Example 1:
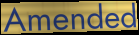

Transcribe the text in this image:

Amended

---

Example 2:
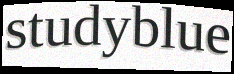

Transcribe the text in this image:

studyblue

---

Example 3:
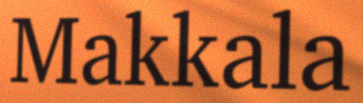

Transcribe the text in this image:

Makkala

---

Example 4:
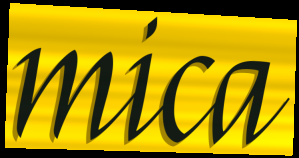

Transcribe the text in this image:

mica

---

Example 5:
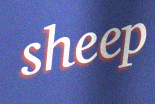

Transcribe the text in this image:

sheep